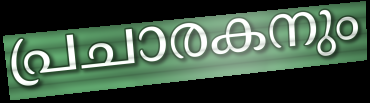
പ്രചാരകനും